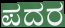
ಪದರ